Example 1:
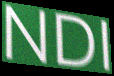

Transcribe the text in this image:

NDI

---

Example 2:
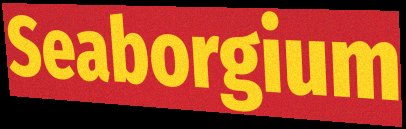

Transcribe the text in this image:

Seaborgium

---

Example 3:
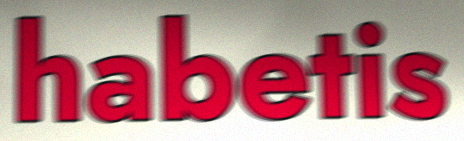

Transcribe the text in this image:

habetis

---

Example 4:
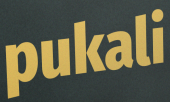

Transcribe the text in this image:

pukali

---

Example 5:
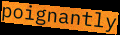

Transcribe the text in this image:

poignantly